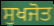
ਸੁਖਜੋਤ